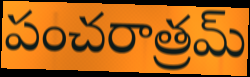
పంచరాత్రమ్